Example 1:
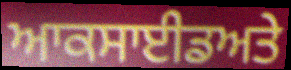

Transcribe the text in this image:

ਆਕਸਾਈਡਅਤੇ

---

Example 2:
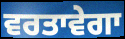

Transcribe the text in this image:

ਵਰਤਾਵੇਗਾ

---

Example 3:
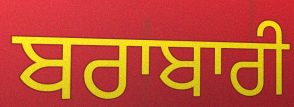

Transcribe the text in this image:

ਬਰਾਬਾਰੀ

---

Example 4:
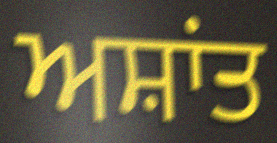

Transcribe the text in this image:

ਅਸ਼ਾਂਤ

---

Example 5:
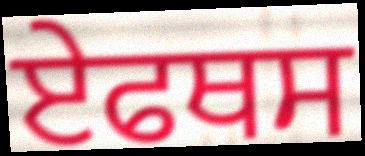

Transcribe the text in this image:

ਏਫਥਸ